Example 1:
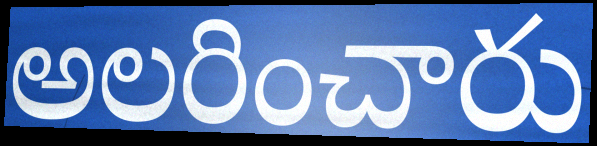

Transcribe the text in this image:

అలరించారు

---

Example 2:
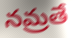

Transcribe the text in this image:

నమ్రతే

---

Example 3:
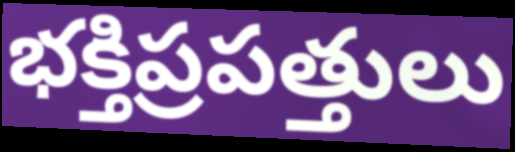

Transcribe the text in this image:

భక్తిప్రపత్తులు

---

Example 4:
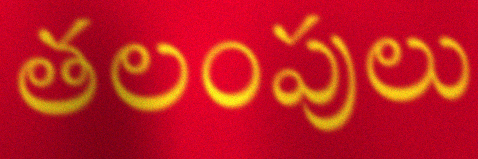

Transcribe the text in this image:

తలంపులు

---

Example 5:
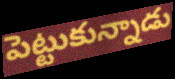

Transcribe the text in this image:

పెట్టుకున్నాడు